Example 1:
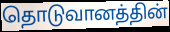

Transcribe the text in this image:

தொடுவானத்தின்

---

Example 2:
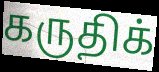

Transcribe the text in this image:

கருதிக்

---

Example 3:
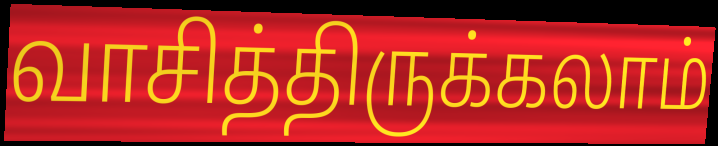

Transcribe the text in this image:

வாசித்திருக்கலாம்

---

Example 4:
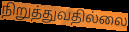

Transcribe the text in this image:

நிறுத்துவதில்லை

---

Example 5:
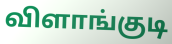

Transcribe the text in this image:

விளாங்குடி